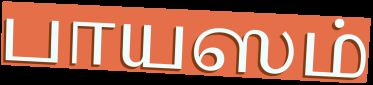
பாயஸம்